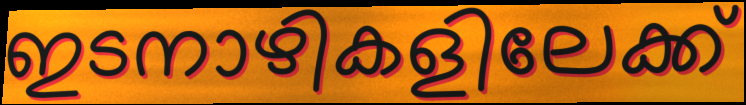
ഇടനാഴികളിലേക്ക്